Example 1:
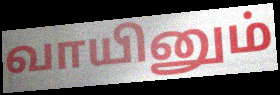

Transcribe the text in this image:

வாயினும்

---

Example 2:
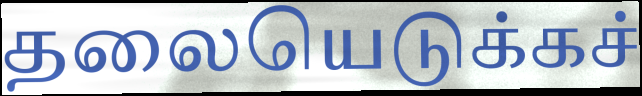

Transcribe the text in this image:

தலையெடுக்கச்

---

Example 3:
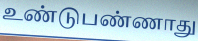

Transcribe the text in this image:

உண்டுபண்ணாது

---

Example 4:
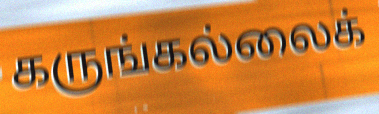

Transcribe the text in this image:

கருங்கல்லைக்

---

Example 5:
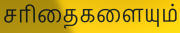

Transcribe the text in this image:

சரிதைகளையும்